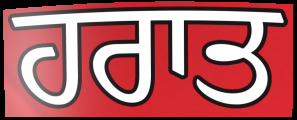
ਹਰਾਤ